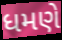
ધમણે